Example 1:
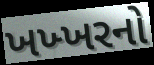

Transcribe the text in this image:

ખખ્ખરનો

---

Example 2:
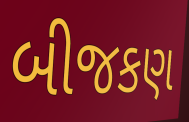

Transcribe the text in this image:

બીજકણ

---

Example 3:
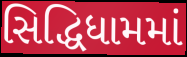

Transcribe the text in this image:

સિદ્ધિધામમાં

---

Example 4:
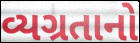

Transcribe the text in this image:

વ્યગ્રતાનો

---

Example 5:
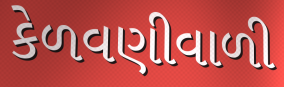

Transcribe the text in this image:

કેળવણીવાળી